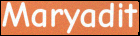
Maryadit